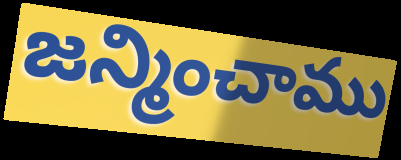
జన్మించాము